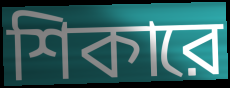
শিকারে